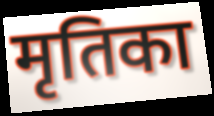
मृतिका